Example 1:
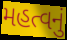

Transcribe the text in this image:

મહત્વનું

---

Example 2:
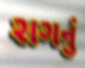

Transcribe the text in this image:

રાગનું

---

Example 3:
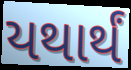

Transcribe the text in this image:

યથાર્થં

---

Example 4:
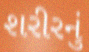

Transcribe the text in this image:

શરીરનું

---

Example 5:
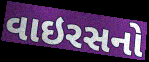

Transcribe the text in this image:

વાઇરસનો